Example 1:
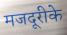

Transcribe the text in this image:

मजदूरीके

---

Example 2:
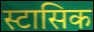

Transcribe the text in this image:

स्टासिक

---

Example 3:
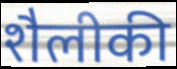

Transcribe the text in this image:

शैलीकी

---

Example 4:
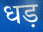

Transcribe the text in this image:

धड़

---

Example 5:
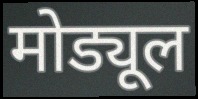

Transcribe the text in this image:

मोड्यूल